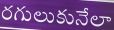
రగులుకునేలా